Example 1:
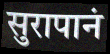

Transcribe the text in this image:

सुरापानं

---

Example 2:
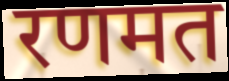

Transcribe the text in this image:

रणमत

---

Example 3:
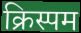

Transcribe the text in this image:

क्रिस्पम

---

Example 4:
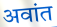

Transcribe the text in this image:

अवांत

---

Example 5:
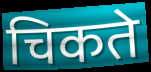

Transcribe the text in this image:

चिकते